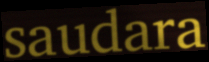
saudara